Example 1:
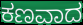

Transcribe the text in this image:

ಕಣವಾದ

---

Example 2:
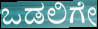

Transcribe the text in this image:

ಒಡಲಿಗೇ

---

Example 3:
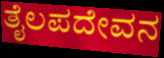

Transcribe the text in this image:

ತೈಲಪದೇವನ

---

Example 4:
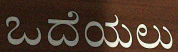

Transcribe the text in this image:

ಒದೆಯಲು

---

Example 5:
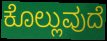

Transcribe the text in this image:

ಕೊಲ್ಲುವುದೆ